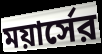
ময়ার্সের